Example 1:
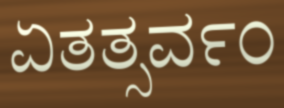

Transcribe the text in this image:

ಏತತ್ಸರ್ವಂ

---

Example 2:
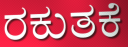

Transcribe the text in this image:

ರಕುತಕೆ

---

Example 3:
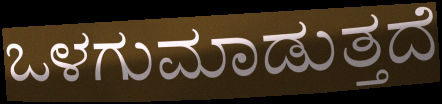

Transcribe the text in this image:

ಒಳಗುಮಾಡುತ್ತದೆ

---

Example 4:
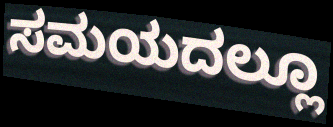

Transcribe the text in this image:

ಸಮಯದಲ್ಲೂ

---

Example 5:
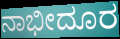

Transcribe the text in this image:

ನಾಭೀದೂರ